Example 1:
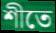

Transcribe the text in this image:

শীতে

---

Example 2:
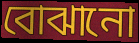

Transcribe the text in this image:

বোঝানো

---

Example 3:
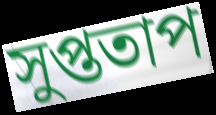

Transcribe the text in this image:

সুপ্ততাপ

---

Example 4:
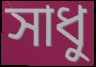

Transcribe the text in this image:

সাধু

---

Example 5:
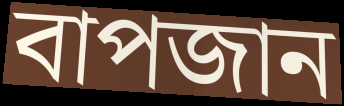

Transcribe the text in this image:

বাপজান